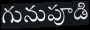
గునుపూడి